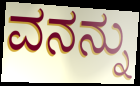
ವನನ್ನು